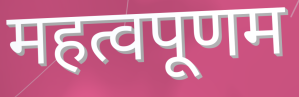
महत्वपूणम